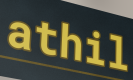
athil